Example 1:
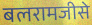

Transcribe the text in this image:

बलरामजीसे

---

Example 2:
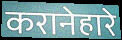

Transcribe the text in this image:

करानेहारे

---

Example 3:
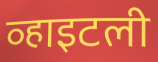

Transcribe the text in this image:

व्हाइटली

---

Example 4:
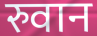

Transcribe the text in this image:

रुवान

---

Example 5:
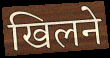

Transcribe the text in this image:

खिलने